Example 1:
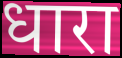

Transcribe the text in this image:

धारा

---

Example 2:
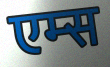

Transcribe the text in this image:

एम्स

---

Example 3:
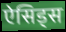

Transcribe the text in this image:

ऐसिड्स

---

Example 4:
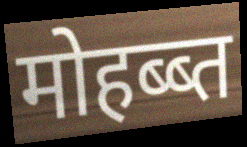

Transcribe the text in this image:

मोहब्ब्त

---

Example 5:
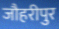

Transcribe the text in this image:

जौहरीपुर